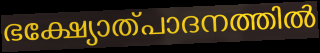
ഭക്ഷ്യോത്പാദനത്തിൽ